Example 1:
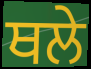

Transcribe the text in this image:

ਥਲੇ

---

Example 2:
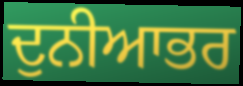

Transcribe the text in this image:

ਦੁਨੀਆਭਰ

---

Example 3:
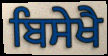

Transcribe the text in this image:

ਬਿਸੇਖੈ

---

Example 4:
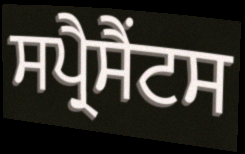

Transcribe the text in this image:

ਸਪ੍ਰੈਸੈਂਟਸ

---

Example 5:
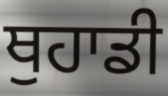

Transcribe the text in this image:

ਥੁਹਾਡੀ